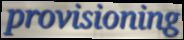
provisioning